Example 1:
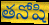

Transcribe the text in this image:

తనోషి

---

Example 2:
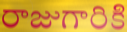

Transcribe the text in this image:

రాజుగారికి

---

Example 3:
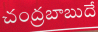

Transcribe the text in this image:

చంద్రబాబుదే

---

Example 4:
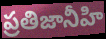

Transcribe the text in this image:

ప్రతిజానీహి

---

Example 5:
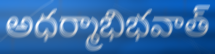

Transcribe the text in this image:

అధర్మాభిభవాత్